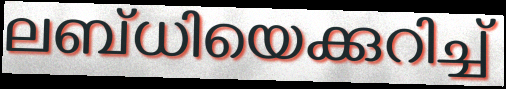
ലബ്ധിയെക്കുറിച്ച്